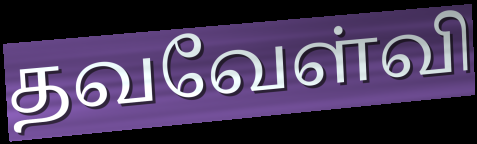
தவவேள்வி